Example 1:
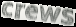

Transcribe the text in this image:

crews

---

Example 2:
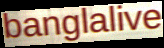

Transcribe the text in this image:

banglalive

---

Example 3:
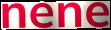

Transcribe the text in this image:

nene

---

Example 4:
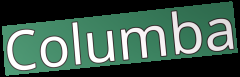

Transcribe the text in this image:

Columba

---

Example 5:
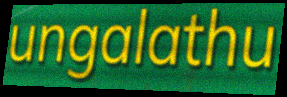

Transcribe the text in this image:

ungalathu